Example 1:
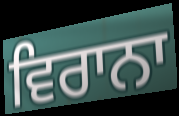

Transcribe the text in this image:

ਵਿਰਾਨਾ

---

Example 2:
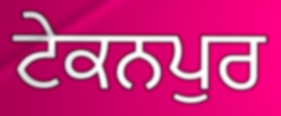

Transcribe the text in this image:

ਟੇਕਨਪੁਰ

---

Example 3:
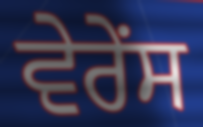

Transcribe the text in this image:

ਵੇਰੇਂਸ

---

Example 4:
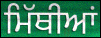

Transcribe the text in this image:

ਮਿੱਥੀਆਂ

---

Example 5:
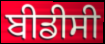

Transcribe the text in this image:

ਬੀਡੀਸੀ